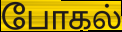
போகல்